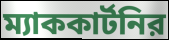
ম্যাককার্টনির